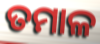
ତମାଳ